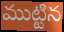
ముట్టిన